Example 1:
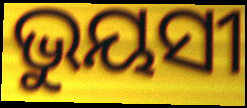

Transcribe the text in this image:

ଭୁୟସୀ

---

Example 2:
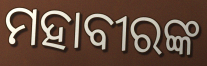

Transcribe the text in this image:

ମହାବୀରଙ୍କ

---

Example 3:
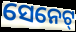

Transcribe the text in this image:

ସେନେଟ୍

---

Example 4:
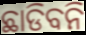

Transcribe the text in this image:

ଛାଡିବନି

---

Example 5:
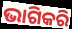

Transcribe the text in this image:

ଭାଗିକରି